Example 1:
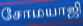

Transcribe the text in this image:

சோமயாஜி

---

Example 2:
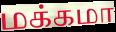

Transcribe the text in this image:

மக்கமா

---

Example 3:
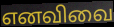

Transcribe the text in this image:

எனவிவை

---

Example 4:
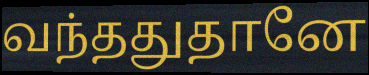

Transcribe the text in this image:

வந்ததுதானே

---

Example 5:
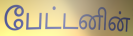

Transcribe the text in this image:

பேட்டனின்